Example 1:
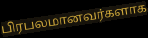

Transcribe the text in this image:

பிரபலமானவர்களாக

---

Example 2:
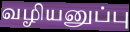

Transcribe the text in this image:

வழியனுப்பு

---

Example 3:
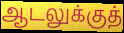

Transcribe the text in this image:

ஆடலுக்குத்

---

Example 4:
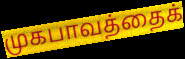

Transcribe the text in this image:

முகபாவத்தைக்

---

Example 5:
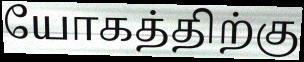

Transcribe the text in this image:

யோகத்திற்கு